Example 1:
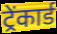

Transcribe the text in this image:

ट्रेंकार्ड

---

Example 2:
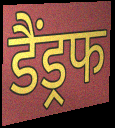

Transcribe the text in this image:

डैंड्रफ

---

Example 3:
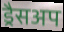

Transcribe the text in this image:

ड्रैसअप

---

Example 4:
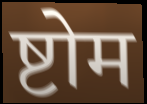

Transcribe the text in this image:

ष्टोम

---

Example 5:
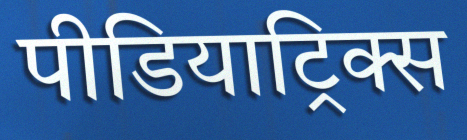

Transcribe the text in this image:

पीडियाट्रिक्स